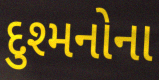
દુશ્મનોના